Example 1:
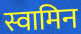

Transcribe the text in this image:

स्वामिन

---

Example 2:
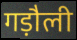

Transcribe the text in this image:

गड़ौली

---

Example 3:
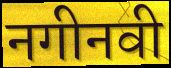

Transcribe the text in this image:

नगीनवी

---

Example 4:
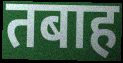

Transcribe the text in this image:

तबाह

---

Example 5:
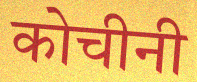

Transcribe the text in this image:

कोचीनी